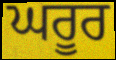
ਘਰੂਰ